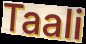
Taali